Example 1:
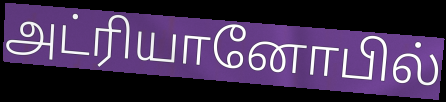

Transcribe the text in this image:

அட்ரியானோபில்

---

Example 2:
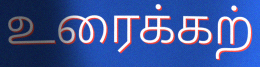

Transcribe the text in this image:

உரைக்கற்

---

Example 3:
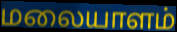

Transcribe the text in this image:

மலையாளம்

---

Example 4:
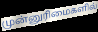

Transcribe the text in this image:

முன்னுரிமைகளில்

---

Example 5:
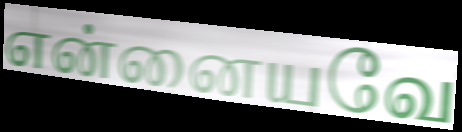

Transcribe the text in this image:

என்னையவே